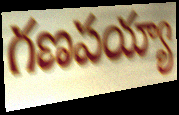
గణపయ్యా